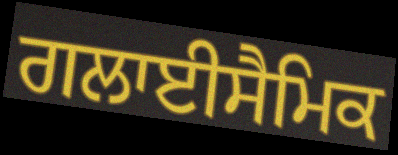
ਗਲਾਈਸੈਮਿਕ